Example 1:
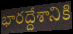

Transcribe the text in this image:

భారద్దేశానికి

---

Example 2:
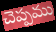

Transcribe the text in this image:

చెప్పము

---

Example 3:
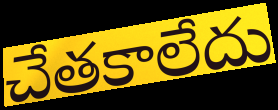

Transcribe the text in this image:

చేతకాలేదు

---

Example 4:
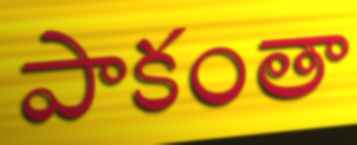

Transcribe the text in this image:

పాకంతా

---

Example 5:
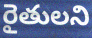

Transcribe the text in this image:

రైతులని